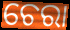
ଚେରା